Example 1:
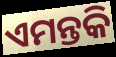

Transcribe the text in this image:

ଏମନ୍ତକି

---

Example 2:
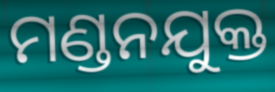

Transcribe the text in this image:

ମଣ୍ଡନଯୁକ୍ତ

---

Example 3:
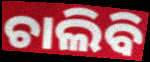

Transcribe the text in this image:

ଚାଲିବି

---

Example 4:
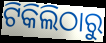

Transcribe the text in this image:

ଟିକିଲିଠାରୁ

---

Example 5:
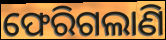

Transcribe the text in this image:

ଫେରିଗଲାଣି